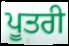
ਪੂਤਰੀ